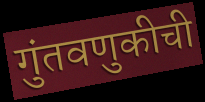
गुंतवणुकीची